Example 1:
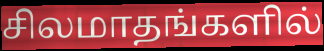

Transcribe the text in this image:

சிலமாதங்களில்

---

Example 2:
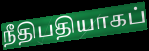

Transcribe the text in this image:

நீதிபதியாகப்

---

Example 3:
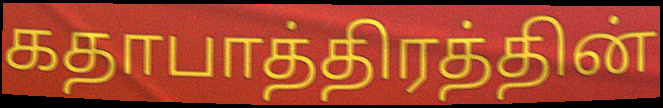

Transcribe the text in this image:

கதாபாத்திரத்தின்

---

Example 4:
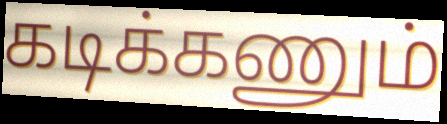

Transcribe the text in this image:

கடிக்கணும்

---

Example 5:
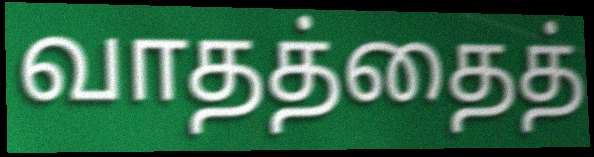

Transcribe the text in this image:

வாதத்தைத்